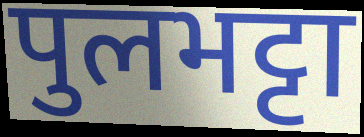
पुलभट्टा